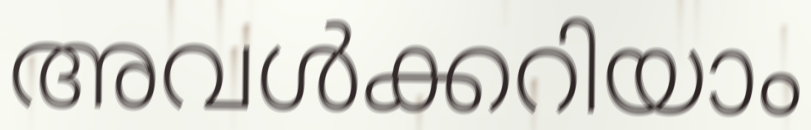
അവൾക്കറിയാം